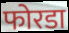
फोरडा